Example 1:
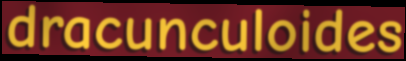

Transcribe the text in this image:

dracunculoides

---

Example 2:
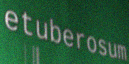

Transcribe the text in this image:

etuberosum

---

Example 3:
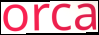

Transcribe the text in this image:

orca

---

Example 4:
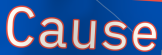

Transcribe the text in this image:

Cause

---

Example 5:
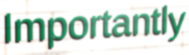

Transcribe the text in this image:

Importantly